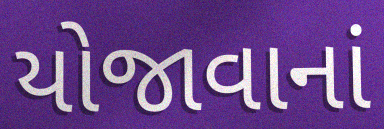
યોજાવાનાં